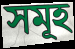
সমূহ